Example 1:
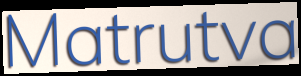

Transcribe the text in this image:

Matrutva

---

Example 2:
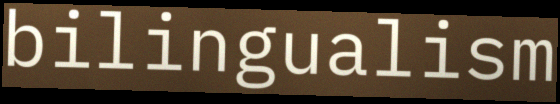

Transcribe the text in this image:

bilingualism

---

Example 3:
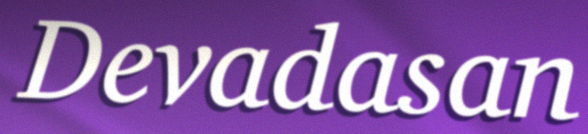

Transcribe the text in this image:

Devadasan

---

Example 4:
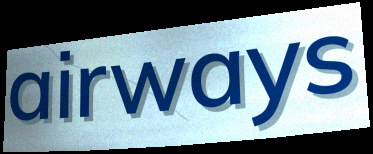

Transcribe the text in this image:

airways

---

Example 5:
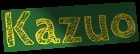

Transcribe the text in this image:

Kazuo